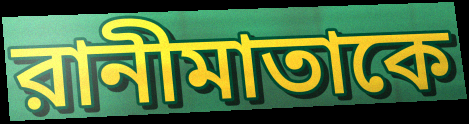
রানীমাতাকে